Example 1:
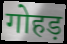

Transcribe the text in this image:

गोहड़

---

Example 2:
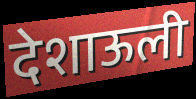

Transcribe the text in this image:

देशाऊली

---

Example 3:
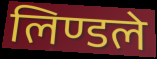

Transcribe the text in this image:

लिण्डले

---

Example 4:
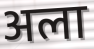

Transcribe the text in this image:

अला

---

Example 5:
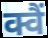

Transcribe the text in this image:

क्वैं